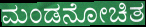
ಮಂಡನೋಚಿತ